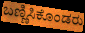
ಬಣ್ಣಿಸಿಕೊಂಡರು